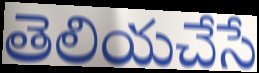
తెలియచేసే